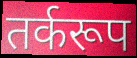
तर्करूप